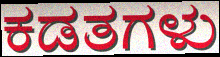
ಕಡತಗಳು